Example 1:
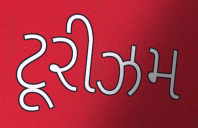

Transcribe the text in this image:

ટૂરીઝમ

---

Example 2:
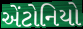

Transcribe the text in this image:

એંટોનિયો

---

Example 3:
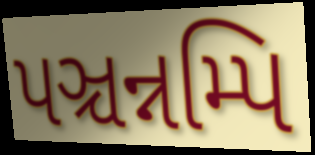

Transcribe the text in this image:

પઞ્ચન્નમ્પિ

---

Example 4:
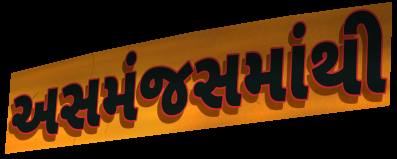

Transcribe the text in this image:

અસમંજસમાંથી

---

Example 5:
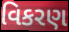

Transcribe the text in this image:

વિકરણ